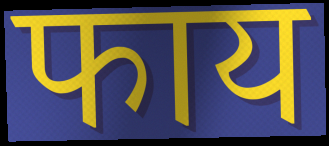
फाय